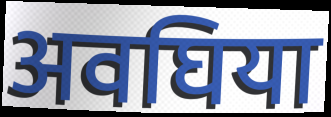
अवघिया